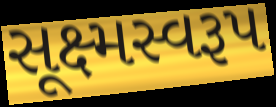
સૂક્ષ્મસ્વરૂપ